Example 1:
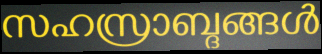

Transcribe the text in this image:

സഹസ്രാബ്ദങ്ങൾ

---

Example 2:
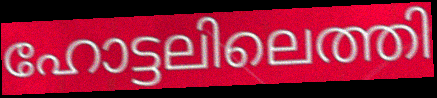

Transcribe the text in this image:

ഹോട്ടലിലെത്തി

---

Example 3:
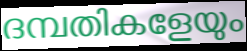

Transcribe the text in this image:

ദമ്പതികളേയും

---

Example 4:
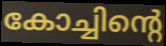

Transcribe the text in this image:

കോച്ചിന്റെ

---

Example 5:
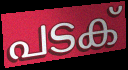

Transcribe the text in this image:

പടക്